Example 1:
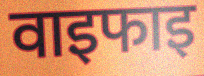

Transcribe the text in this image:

वाइफाइ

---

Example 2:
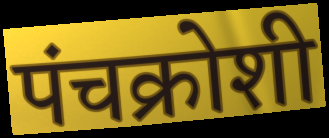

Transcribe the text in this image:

पंचक्रोशी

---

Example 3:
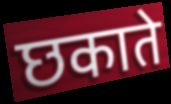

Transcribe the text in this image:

छकाते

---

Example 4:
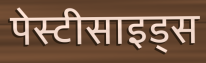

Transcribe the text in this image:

पेस्टीसाइड्स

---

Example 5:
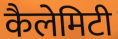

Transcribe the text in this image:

कैलेमिटी